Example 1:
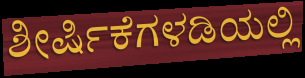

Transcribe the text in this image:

ಶೀರ್ಷಿಕೆಗಳಡಿಯಲ್ಲಿ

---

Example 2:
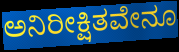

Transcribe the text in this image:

ಅನಿರೀಕ್ಷಿತವೇನೂ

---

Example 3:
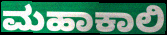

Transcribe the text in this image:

ಮಹಾಕಾಲಿ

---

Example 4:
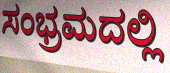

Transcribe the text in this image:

ಸಂಭ್ರಮದಲ್ಲಿ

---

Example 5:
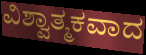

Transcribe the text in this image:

ವಿಶ್ವಾತ್ಮಕವಾದ